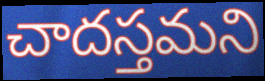
చాదస్తమని